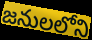
జనులలోని